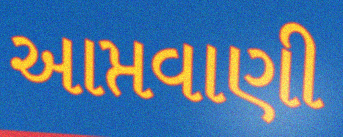
આપ્તવાણી